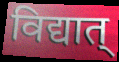
विद्यात्